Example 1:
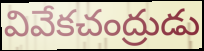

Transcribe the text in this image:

వివేకచంద్రుడు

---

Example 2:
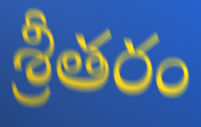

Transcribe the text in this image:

శ్రీతరం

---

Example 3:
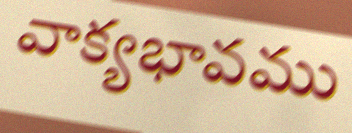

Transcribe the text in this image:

వాక్యభావము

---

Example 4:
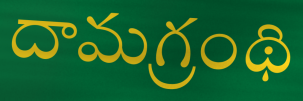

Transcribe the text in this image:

దామగ్రంథి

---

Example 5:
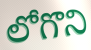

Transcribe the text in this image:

లోగొని